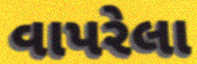
વાપરેલા